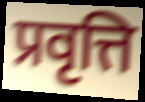
प्रवृत्ति